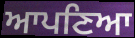
ਆਪਣਿਆ